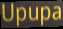
Upupa